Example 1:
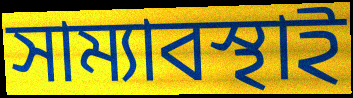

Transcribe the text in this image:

সাম্যাবস্থাই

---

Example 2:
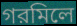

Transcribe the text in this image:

গরমিলে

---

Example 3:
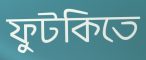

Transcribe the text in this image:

ফুটকিতে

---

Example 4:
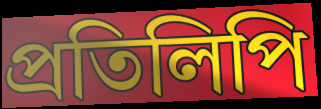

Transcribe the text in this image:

প্রতিলিপি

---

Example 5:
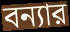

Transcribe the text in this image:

বন্যার